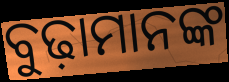
ବୁଢ଼ାମାନଙ୍କ